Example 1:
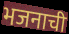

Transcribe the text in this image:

भजनाची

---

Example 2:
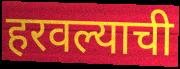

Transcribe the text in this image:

हरवल्याची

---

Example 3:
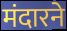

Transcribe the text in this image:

मंदारने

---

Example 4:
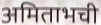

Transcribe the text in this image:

अमिताभची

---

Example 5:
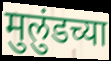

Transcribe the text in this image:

मुलुंडच्या